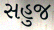
સહુજ